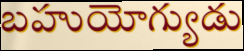
బహుయోగ్యుడు